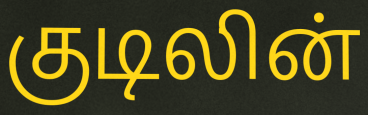
குடிலின்